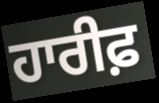
ਹਾਰੀਫ਼